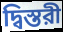
দ্বিস্তরী